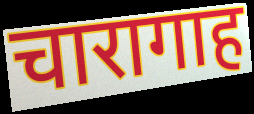
चारागाह